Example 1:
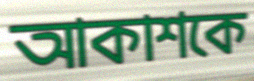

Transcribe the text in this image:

আকাশকে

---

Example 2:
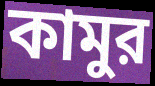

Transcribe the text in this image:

কামুর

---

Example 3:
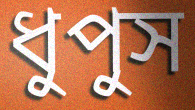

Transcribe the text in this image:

ধুপুস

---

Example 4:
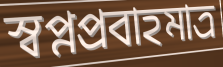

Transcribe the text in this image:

স্বপ্নপ্রবাহমাত্র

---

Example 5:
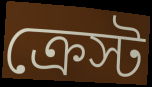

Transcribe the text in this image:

ক্রেস্ট